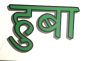
हुबा